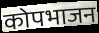
कोपभाजन